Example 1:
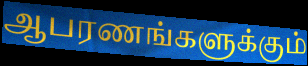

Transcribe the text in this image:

ஆபரணங்களுக்கும்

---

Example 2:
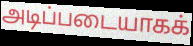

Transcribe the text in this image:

அடிப்படையாகக்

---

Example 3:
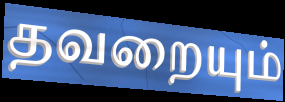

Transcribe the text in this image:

தவறையும்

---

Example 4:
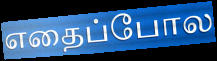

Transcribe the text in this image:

எதைப்போல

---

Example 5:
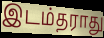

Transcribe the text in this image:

இடம்தராது